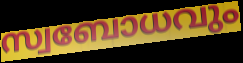
സ്വബോധവും